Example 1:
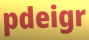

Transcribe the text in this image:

pdeigr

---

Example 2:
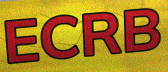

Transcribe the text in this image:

ECRB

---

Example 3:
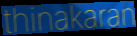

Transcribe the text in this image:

thinakaran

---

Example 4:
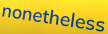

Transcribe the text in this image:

nonetheless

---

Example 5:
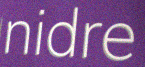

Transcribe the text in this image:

nidre